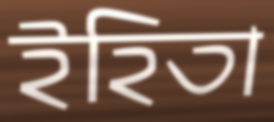
ইহিতা